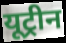
यूट्रीन